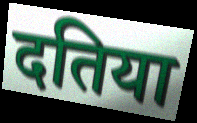
दतिया